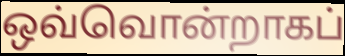
ஒவ்வொன்றாகப்